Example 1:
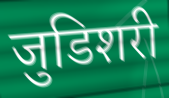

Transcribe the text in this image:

जुडिशरी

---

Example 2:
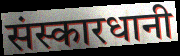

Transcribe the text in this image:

संस्कारधानी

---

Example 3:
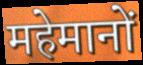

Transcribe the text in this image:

महेमानों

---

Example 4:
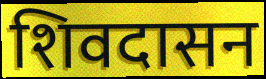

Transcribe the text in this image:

शिवदासन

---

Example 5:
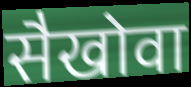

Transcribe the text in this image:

सैखोवा